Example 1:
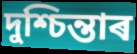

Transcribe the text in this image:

দুশ্চিন্তাৰ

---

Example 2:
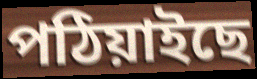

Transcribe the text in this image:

পঠিয়াইছে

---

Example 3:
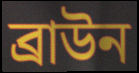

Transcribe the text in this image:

ব্ৰাউন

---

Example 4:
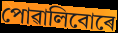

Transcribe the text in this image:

পোৱালিবোৰে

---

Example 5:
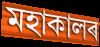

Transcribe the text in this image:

মহাকালৰ